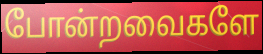
போன்றவைகளே